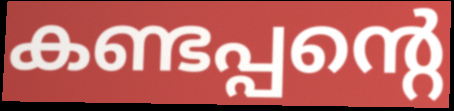
കണ്ടപ്പന്റെ